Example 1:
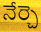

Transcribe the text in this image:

నేర్చె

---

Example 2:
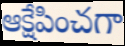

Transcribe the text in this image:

ఆక్షేపించగా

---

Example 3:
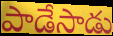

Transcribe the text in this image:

పాడేసాడు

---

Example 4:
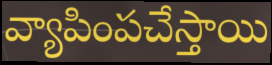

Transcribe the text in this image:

వ్యాపింపచేస్తాయి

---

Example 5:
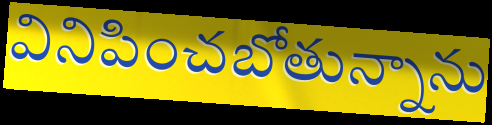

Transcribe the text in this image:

వినిపించబోతున్నాను